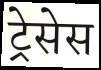
ट्रेसेस